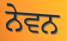
ਨੇਵਨ